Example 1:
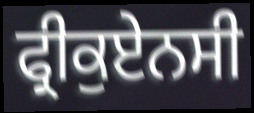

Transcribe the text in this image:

ਫ੍ਰੀਕੁਏਨਸੀ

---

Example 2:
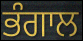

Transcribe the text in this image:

ਭੰਗਾਲ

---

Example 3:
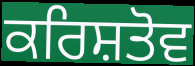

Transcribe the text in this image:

ਕਰਿਸ਼ਤੋਵ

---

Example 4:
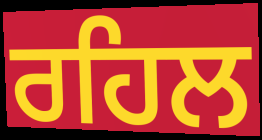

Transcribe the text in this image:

ਰਹਿਲ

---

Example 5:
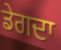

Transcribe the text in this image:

ਡੇਗਦਾ